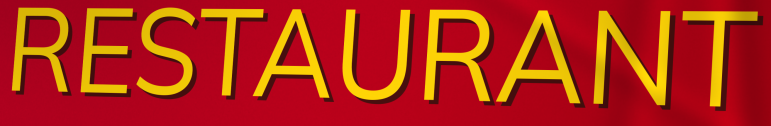
RESTAURANT